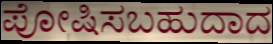
ಪೋಷಿಸಬಹುದಾದ